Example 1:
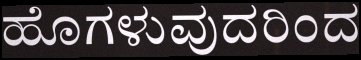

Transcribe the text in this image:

ಹೊಗಳುವುದರಿಂದ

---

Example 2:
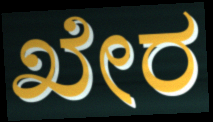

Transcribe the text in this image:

ಖೇರ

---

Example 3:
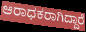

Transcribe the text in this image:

ಆರಾಧಕರಾಗಿದ್ದಾರೆ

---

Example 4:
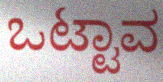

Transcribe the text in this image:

ಒಟ್ಟಾವ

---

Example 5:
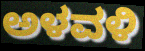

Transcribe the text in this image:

ಅಳವಳಿ